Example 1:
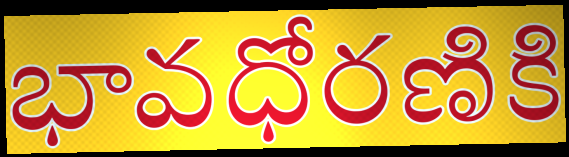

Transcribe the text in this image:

భావధోరణికి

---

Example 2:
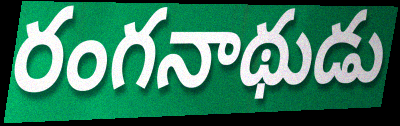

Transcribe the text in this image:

రంగనాథుడు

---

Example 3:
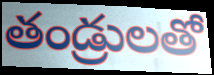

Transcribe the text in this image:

తండ్రులతో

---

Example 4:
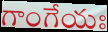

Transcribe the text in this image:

గాంగేయః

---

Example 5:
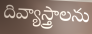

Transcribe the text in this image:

దివ్యాస్త్రాలను